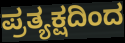
ಪ್ರತ್ಯಕ್ಷದಿಂದ